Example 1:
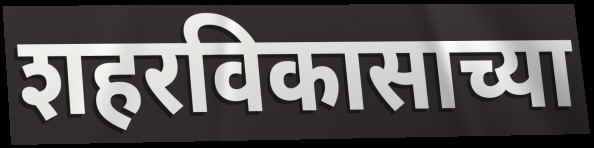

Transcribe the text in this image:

शहरविकासाच्या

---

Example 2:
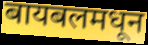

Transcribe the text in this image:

बायबलमधून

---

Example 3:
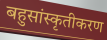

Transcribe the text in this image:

बहुसांस्कृतीकरण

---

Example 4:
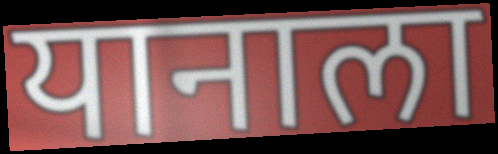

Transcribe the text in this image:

यानाला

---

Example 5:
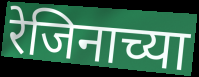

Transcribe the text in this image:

रेजिनाच्या